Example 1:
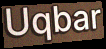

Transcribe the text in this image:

Uqbar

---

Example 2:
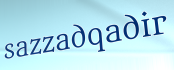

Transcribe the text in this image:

sazzadqadir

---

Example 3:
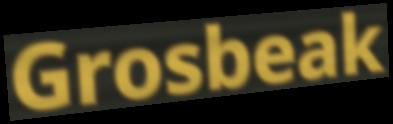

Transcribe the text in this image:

Grosbeak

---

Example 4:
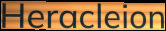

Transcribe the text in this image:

Heracleion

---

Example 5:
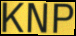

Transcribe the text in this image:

KNP